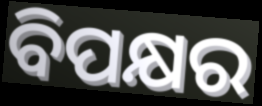
ବିପକ୍ଷର